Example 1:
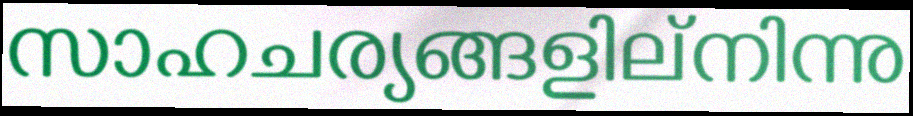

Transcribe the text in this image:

സാഹചര്യങ്ങളില്നിന്നു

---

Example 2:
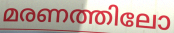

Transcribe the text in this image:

മരണത്തിലോ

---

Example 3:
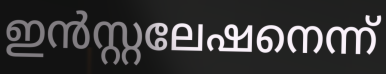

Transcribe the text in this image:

ഇൻസ്റ്റലേഷനെന്ന്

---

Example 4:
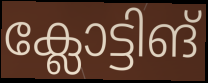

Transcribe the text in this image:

ക്ലോട്ടിങ്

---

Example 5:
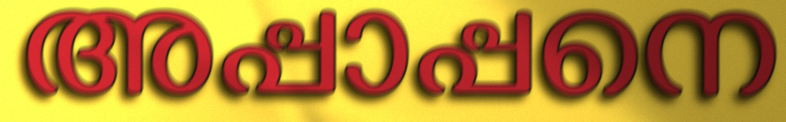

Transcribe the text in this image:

അപ്പാപ്പനെ